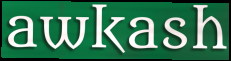
awkash